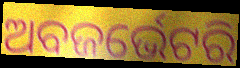
ଅବଜର୍ଭେଟରି